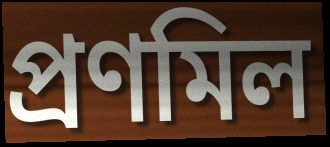
প্রণমিল